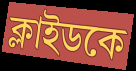
ক্লাইডকে